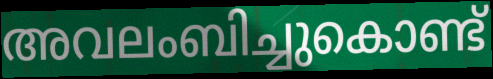
അവലംബിച്ചുകൊണ്ട്